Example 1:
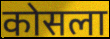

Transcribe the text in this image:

कोसला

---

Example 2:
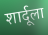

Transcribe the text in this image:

शार्दूला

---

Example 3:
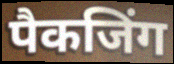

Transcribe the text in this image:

पैकजिंग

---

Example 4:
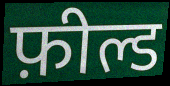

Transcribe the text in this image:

फ़ील्ड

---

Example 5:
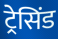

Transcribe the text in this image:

ट्रेसिंड